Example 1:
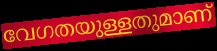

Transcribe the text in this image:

വേഗതയുള്ളതുമാണ്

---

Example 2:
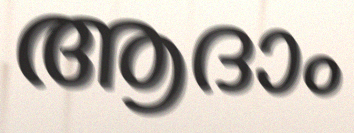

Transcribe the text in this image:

ആദാം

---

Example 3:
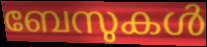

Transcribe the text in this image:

ബേസുകൾ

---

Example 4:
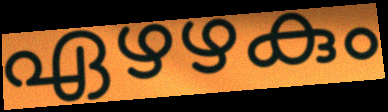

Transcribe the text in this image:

ഏഴഴകും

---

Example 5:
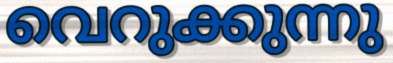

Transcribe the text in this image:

വെറുക്കുന്നു